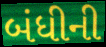
બંધીની